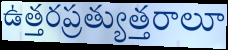
ఉత్తరప్రత్యుత్తరాలూ